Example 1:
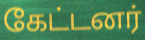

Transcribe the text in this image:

கேட்டனர்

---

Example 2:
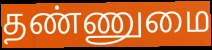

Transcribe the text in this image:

தண்ணுமை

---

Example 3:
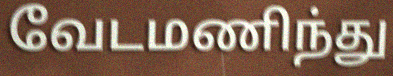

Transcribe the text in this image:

வேடமணிந்து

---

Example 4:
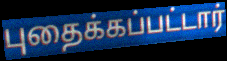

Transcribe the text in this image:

புதைக்கப்பட்டார்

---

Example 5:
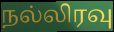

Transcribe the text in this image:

நல்லிரவு